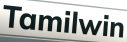
Tamilwin